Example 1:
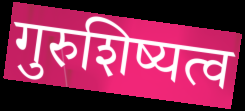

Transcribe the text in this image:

गुरुशिष्यत्व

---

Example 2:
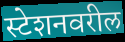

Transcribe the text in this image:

स्टेशनवरील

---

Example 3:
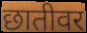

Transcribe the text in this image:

छातीवर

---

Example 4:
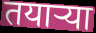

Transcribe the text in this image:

तयाऱ्या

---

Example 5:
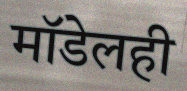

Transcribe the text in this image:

मॉडेलही